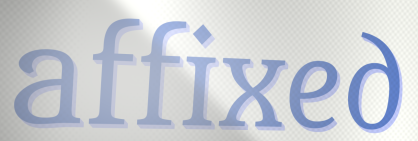
affixed